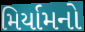
મિર્યામનો